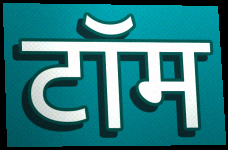
टॉम